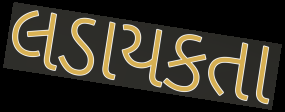
લડાયકતા